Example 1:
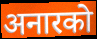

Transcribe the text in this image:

अनारको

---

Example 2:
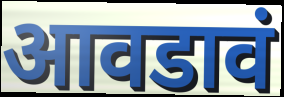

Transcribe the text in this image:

आवडावं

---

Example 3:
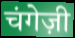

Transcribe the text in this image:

चंगेज़ी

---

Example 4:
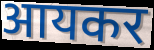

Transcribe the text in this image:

आयकर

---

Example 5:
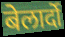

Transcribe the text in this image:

बेलार्दो